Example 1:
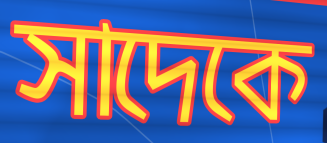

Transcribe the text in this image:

সাদেকে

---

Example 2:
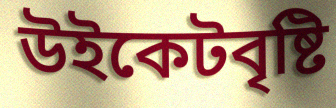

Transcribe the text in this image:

উইকেটবৃষ্টি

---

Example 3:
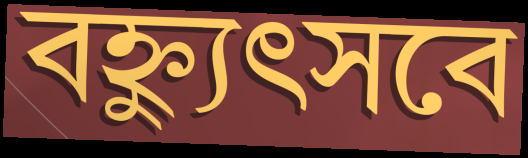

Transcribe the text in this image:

বহ্ন্যুৎসবে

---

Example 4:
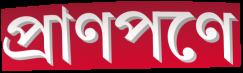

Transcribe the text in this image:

প্রাণপণে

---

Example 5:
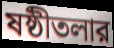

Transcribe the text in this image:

ষষ্ঠীতলার